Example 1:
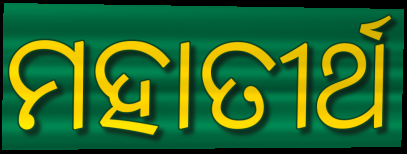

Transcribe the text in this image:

ମହାତୀର୍ଥ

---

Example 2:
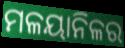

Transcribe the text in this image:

ମଳୟାନିଳର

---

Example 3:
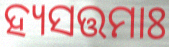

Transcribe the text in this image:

ହ୍ୟସତ୍ତମାଃ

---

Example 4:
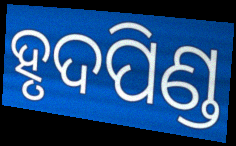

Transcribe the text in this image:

ହୃଦପିଣ୍ଡ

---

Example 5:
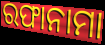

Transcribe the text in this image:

ରଫାନାମା